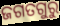
ଜଗତଗୁରୁ